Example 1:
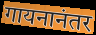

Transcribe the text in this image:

गायनानंतर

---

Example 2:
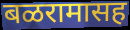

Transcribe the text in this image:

बळरामासह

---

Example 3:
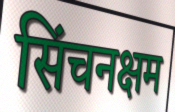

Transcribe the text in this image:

सिंचनक्षम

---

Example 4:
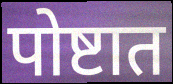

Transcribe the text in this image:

पोष्टात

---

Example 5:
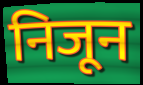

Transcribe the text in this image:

निजून